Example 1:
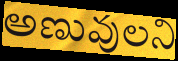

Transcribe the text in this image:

అణువులని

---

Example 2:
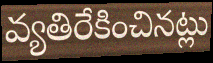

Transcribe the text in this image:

వ్యతిరేకించినట్లు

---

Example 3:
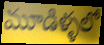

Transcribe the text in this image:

మూడిళ్ళలో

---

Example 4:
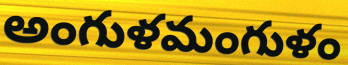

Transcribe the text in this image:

అంగుళమంగుళం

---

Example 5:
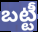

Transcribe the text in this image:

బట్టీ